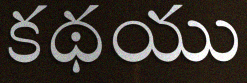
కథయు